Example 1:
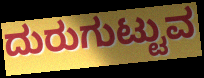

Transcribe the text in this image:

ದುರುಗುಟ್ಟುವ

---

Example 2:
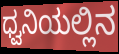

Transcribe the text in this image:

ಧ್ವನಿಯಲ್ಲಿನ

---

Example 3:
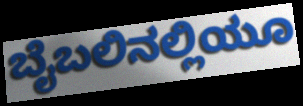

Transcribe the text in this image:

ಬೈಬಲಿನಲ್ಲಿಯೂ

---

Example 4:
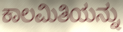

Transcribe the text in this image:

ಕಾಲಮಿತಿಯನ್ನು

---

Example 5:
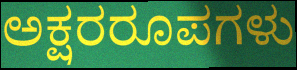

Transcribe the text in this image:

ಅಕ್ಷರರೂಪಗಳು